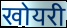
खोयरी